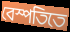
বেস্পতিতে